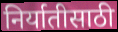
निर्यातीसाठी